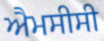
ਐਮਸੀਸੀ